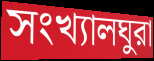
সংখ্যালঘুরা